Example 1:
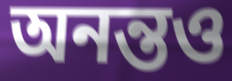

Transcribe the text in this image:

অনন্তও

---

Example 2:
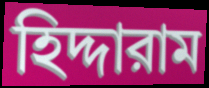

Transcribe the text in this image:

হিদ্দারাম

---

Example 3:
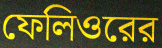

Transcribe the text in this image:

ফেলিওরের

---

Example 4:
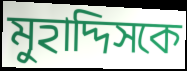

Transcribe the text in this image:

মুহাদ্দিসকে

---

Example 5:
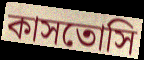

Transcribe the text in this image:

কাসতোসি